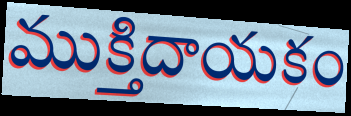
ముక్తిదాయకం